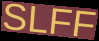
SLFF